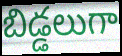
బిడ్డలుగా